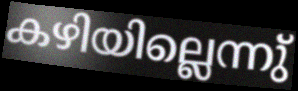
കഴിയില്ലെന്നു്